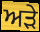
ਅੜੇ